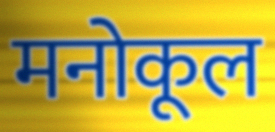
मनोकूल